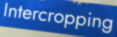
Intercropping